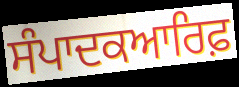
ਸੰਪਾਦਕਆਰਿਫ਼